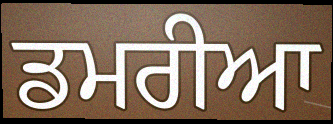
ਡਮਰੀਆ